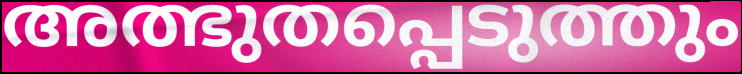
അത്ഭുതപ്പെടുത്തും